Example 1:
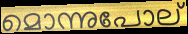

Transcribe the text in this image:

മൊന്നുപോല്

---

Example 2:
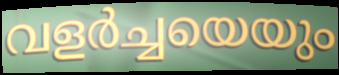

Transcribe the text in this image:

വളർച്ചയെയും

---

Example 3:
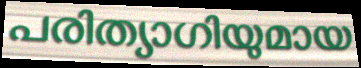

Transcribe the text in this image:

പരിത്യാഗിയുമായ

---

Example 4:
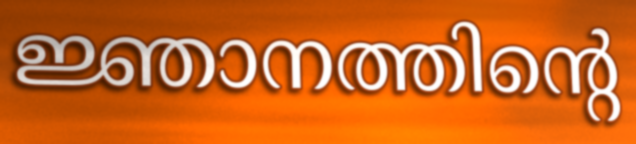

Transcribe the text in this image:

ജ്ഞാനത്തിന്റെ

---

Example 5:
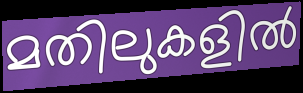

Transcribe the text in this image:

മതിലുകളിൽ